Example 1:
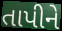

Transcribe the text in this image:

તાપીને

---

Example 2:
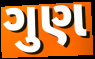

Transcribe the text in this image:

ગુણ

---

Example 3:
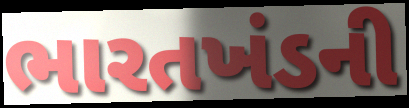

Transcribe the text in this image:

ભારતખંડની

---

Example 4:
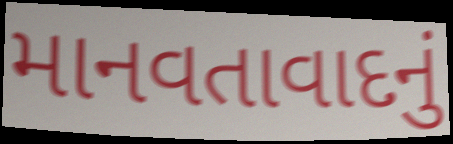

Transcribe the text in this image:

માનવતાવાદનું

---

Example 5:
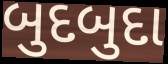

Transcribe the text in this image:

બુદબુદા